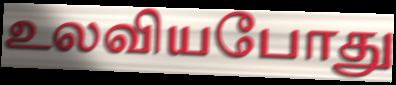
உலவியபோது